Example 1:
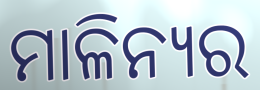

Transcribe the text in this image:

ମାଳିନ୍ୟର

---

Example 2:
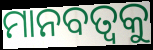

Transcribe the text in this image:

ମାନବତ୍ବକୁ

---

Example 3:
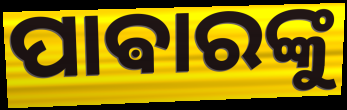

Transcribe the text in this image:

ପାଵାରଙ୍କୁ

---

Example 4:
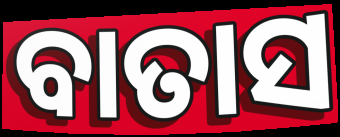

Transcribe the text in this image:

ବାତାସ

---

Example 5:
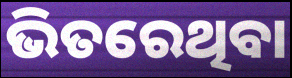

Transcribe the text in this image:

ଭିତରେଥିବା